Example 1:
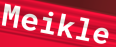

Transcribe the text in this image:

Meikle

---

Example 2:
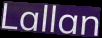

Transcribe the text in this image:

Lallan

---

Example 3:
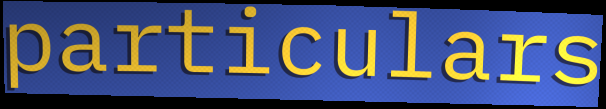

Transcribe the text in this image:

particulars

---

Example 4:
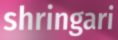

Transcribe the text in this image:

shringari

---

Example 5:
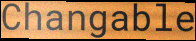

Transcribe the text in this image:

Changable